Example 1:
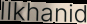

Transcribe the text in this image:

Ilkhanid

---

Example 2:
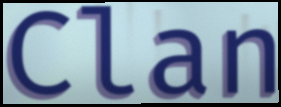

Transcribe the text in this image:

Clan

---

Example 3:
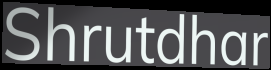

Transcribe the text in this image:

Shrutdhar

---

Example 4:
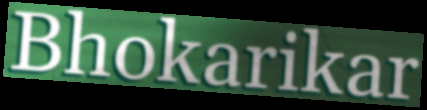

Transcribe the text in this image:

Bhokarikar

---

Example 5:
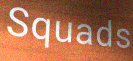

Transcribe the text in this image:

Squads